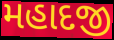
મહાદજી